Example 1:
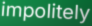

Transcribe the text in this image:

impolitely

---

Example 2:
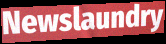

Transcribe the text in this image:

Newslaundry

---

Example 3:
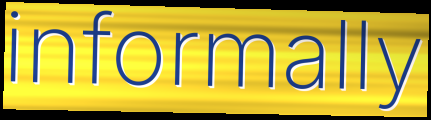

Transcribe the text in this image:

informally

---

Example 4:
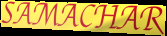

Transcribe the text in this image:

SAMACHAR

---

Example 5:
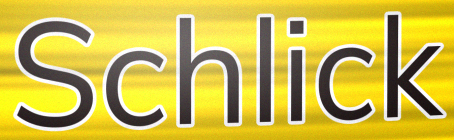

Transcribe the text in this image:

Schlick